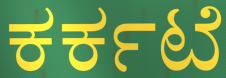
ಕರ್ಕಟೆ